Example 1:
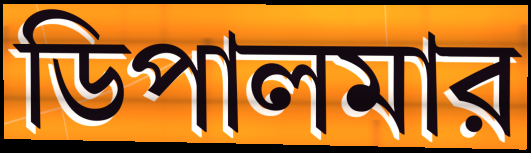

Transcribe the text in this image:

ডিপালমার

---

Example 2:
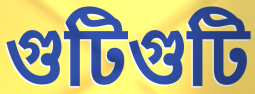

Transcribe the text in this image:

গুটিগুটি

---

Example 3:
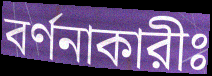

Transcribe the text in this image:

বর্ণনাকারীঃ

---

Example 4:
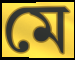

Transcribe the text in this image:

মে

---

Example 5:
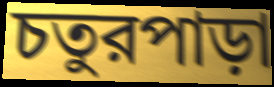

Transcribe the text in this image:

চতুরপাড়া